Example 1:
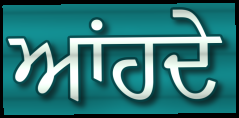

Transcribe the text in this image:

ਆਂਹਦੇ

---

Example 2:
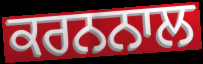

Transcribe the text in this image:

ਕਰਨਨਾਲ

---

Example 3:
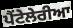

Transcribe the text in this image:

ਪੈਂਟੇਲੇਰੀਆ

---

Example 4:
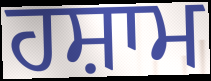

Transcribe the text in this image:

ਹਸ਼ਾਮ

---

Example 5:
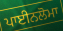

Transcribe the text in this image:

ਪਾਈਨਲੋਮਾ